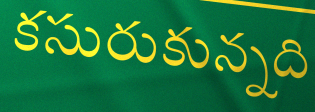
కసురుకున్నది